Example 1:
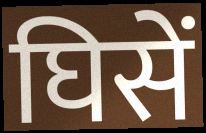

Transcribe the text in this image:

घिसें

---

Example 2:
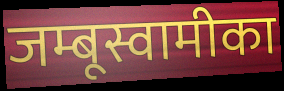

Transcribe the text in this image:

जम्बूस्वामीका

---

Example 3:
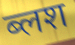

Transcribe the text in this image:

ब्लश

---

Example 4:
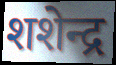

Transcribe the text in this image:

शशेन्द्र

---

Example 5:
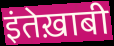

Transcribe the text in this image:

इंतेख़ाबी